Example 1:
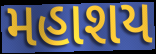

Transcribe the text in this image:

મહાશય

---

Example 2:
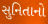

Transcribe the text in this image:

સુનિતાનો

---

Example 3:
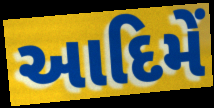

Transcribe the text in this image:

આદિમેં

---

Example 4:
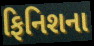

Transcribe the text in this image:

ફિનિશના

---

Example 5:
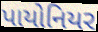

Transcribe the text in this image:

પાયોનિયર